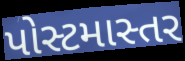
પોસ્ટમાસ્તર